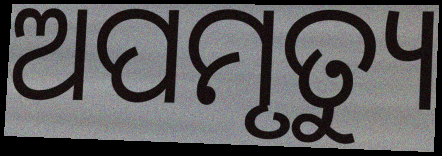
ଅପମୃତ୍ୟୁ